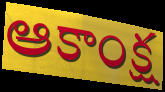
ఆకాంక్ష